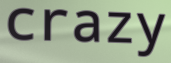
crazy